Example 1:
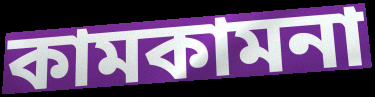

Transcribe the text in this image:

কামকামনা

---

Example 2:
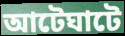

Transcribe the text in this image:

আটেঘাটে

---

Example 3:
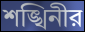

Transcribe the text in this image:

শঙ্খিনীর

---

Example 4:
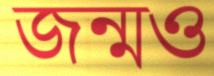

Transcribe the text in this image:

জন্মও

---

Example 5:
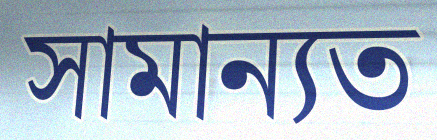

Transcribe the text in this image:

সামান্যত